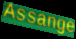
Assange